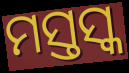
ମସ୍ତସ୍କ